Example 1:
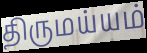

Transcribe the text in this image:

திருமய்யம்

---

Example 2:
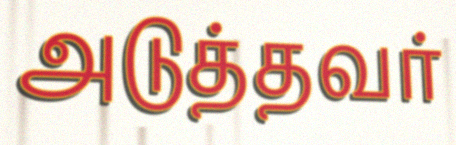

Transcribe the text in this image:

அடுத்தவர்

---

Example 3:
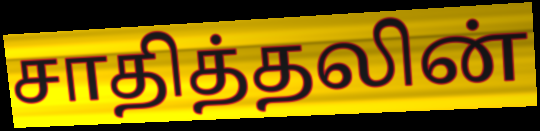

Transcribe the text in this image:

சாதித்தலின்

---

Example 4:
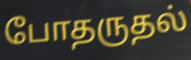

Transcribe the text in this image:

போதருதல்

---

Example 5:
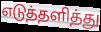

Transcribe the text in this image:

எடுத்தளித்து